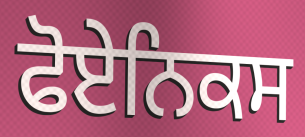
ਫੋਏਨਿਕਸ